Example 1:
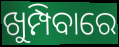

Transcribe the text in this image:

ଖୁମ୍ପିବାରେ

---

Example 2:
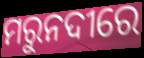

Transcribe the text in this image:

ମରୁନଦୀରେ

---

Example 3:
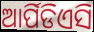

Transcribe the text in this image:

ଆର୍ପିଡିଏସି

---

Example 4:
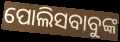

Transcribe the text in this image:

ପୋଲିସବାବୁଙ୍କ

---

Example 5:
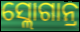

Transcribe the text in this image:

ସ୍ଲୋଗାନ୍ର